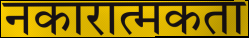
नकारात्मकता